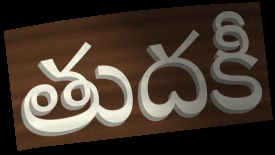
తుదకీ